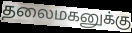
தலைமகனுக்கு